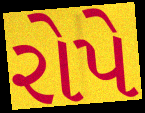
રોપે